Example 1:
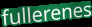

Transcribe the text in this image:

fullerenes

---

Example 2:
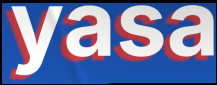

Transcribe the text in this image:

yasa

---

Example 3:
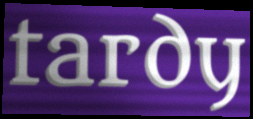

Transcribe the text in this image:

tardy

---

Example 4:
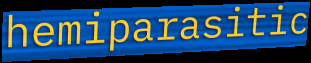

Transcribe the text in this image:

hemiparasitic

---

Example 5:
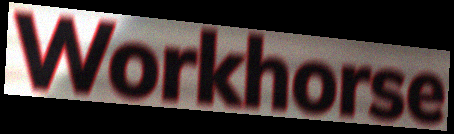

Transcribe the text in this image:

Workhorse